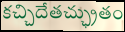
కచ్చిదేతచ్ఛ్రుతం